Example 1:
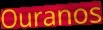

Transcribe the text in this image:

Ouranos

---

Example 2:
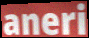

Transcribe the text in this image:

aneri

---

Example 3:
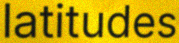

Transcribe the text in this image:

latitudes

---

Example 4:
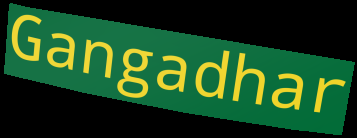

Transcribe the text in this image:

Gangadhar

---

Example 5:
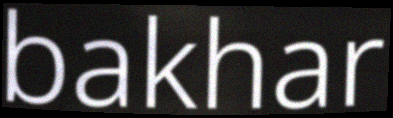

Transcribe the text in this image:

bakhar